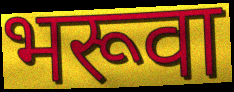
भरूवा